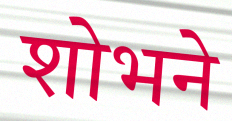
शोभने